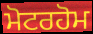
ਮੋਟਰਹੋਮ